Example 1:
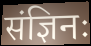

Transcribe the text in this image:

संज्ञिनः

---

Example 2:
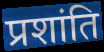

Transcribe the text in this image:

प्रशांति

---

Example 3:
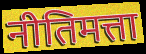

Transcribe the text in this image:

नीतिमत्ता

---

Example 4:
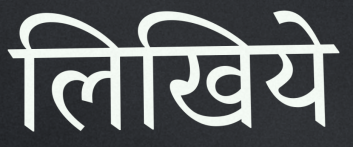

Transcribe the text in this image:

लिखिये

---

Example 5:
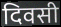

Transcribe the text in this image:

दिवसी